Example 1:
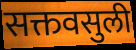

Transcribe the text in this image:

सक्तवसुली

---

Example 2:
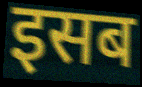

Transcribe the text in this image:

इसब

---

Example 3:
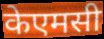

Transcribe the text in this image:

केएमसी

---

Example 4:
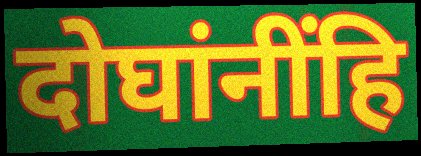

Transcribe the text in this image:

दोघांनींहि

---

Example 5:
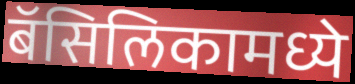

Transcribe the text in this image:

बॅसिलिकामध्ये